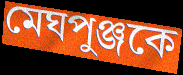
মেঘপুঞ্জকে